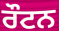
ਰੌਟਨ